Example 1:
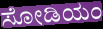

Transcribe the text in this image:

ಸೋಡಿಯಂ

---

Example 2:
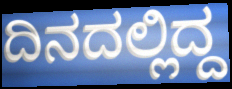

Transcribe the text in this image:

ದಿನದಲ್ಲಿದ್ದ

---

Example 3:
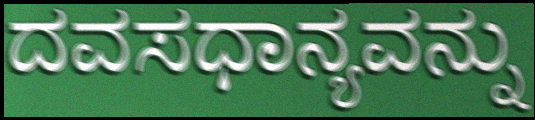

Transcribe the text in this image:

ದವಸಧಾನ್ಯವನ್ನು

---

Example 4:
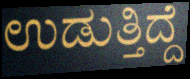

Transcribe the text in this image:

ಉಡುತ್ತಿದ್ದೆ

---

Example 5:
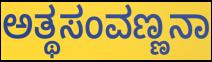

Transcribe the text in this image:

ಅತ್ಥಸಂವಣ್ಣನಾ